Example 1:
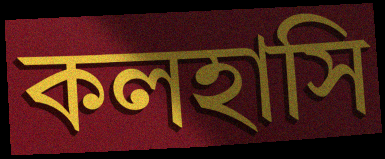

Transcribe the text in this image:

কলহাসি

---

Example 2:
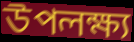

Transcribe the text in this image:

উপলক্ষ্য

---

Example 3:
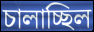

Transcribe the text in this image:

চালাচ্ছিল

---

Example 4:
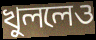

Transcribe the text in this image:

খুললেও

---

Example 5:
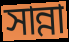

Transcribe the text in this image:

সান্না